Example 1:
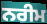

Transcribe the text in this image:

ਨਰੀਮ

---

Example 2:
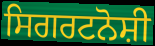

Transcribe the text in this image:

ਸਿਗਰਟਨੋਸ਼ੀ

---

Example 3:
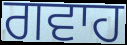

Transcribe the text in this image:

ਗਵਾਹ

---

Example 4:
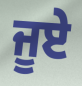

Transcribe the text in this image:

ਜੂਏ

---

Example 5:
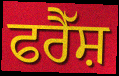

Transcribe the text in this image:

ਫਰੈੱਸ਼